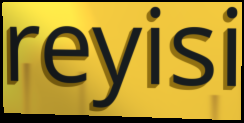
reyisi